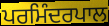
ਪਰਮਿੰਦਰਪਾਲ